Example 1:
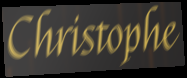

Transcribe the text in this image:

Christophe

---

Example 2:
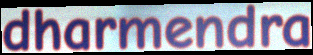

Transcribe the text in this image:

dharmendra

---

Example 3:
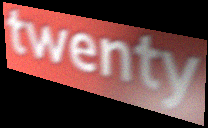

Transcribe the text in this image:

twenty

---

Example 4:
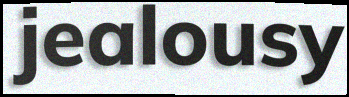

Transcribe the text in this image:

jealousy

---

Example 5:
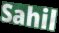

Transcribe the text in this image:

Sahil